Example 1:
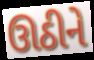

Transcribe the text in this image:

ઊઠીને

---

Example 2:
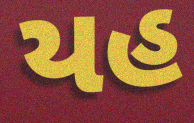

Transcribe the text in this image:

યહ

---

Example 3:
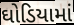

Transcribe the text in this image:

ઘોડિયામાં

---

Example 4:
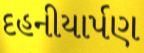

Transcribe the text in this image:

દહનીયાર્પણ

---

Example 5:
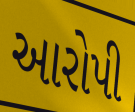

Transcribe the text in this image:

આરોપી